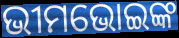
ଭୀମଭୋଇଙ୍କ